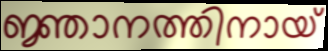
ജ്ഞാനത്തിനായ്